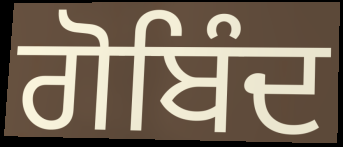
ਗੋਬਿੰਦ